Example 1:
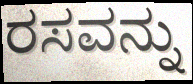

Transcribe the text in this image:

ರಸವನ್ನು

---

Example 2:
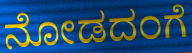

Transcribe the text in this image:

ನೋಡದಂಗೆ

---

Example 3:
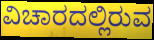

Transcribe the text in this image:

ವಿಚಾರದಲ್ಲಿರುವ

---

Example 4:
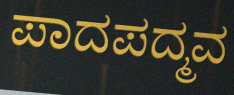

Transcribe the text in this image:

ಪಾದಪದ್ಮವ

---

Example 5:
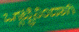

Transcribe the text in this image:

ಒಗ್ಗಟ್ಟಿನಿಂದಾಗಿ